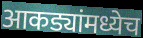
आकड्यांमध्येच